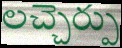
లచ్చెర్పు